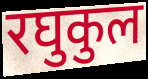
रघुकुल